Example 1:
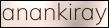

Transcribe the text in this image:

anankiray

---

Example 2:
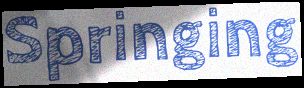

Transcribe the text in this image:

Springing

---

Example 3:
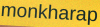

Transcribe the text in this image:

monkharap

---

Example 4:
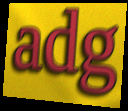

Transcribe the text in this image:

adg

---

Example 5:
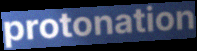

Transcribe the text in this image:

protonation